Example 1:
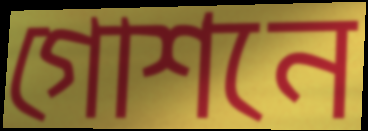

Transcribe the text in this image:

গোশনে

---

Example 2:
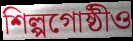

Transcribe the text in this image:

শিল্পগোষ্ঠীও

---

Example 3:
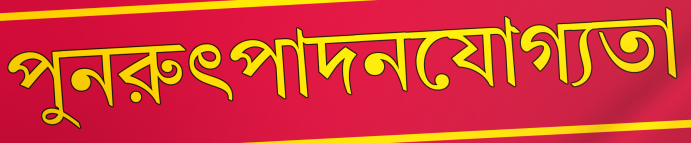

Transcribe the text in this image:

পুনরুৎপাদনযোগ্যতা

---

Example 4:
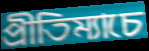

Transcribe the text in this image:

প্রীতিম্যাচে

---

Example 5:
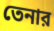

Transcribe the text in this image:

তেনার